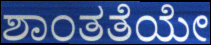
ಶಾಂತತೆಯೇ